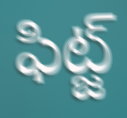
ఫిట్జ్